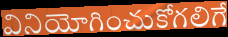
వినియోగించుకోగలిగే